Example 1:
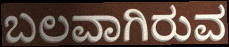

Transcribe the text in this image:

ಬಲವಾಗಿರುವ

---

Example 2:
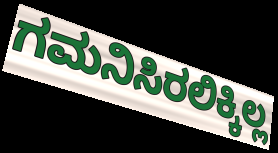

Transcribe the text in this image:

ಗಮನಿಸಿರಲಿಕ್ಕಿಲ್ಲ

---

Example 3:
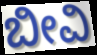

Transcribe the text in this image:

ಬೀವಿ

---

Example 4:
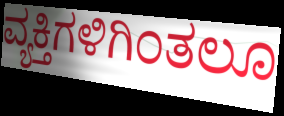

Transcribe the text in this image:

ವ್ಯಕ್ತಿಗಳಿಗಿಂತಲೂ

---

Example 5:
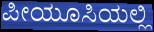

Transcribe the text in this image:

ಪೀಯೂಸಿಯಲ್ಲಿ